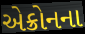
એક્રોનના